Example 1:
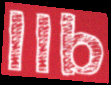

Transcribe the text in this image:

IIb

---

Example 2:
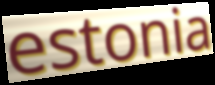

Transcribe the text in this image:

estonia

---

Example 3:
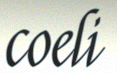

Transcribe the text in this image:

coeli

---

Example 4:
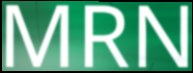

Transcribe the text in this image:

MRN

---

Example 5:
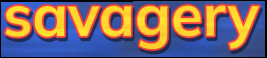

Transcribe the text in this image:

savagery